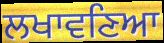
ਲਖਾਵਣਿਆ